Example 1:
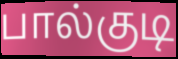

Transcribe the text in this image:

பால்குடி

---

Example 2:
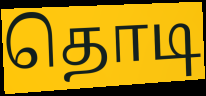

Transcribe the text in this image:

தொடி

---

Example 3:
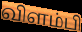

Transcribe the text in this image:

விளம்பி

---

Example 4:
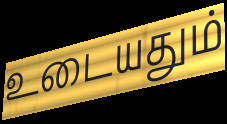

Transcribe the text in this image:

உடையதும்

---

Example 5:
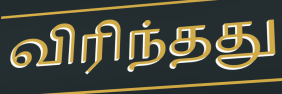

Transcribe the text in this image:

விரிந்தது